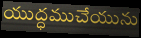
యుద్ధముచేయును